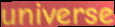
universe